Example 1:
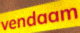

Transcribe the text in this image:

vendaam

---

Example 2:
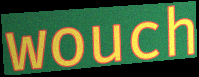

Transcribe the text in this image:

wouch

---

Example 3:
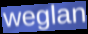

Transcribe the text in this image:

weglan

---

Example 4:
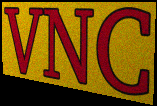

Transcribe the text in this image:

VNC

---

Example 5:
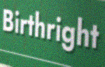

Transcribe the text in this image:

Birthright